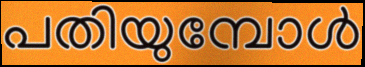
പതിയുമ്പോൾ